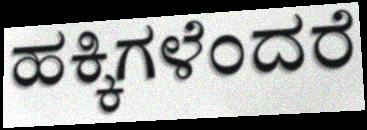
ಹಕ್ಕಿಗಳೆಂದರೆ